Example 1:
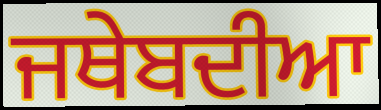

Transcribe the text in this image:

ਜਥੇਬਦੀਆ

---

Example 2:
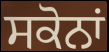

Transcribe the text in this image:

ਸਕੋਨਾਂ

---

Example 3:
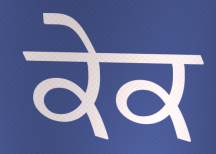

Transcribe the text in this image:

ਕੇਕ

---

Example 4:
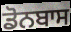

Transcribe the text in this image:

ਡੋਨਬਾਸ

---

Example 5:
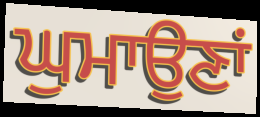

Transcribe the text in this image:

ਘੁਮਾਉਣਾਂ